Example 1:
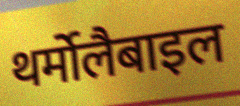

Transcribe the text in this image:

थर्मोलैबाइल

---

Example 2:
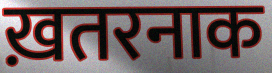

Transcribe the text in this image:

ख़तरनाक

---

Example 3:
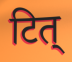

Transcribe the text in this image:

टित्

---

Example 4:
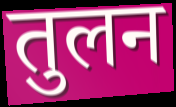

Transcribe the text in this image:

तुलन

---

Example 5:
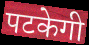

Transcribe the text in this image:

पटकेगी